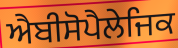
ਐਬੀਸੋਪੈਲੇਜਿਕ